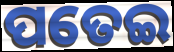
ପତେଇ